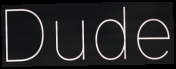
Dude